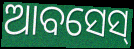
ଆବସେସ୍